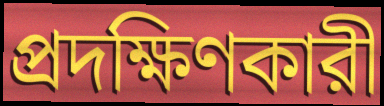
প্রদক্ষিণকারী